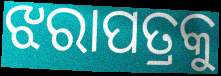
ଝରାପତ୍ରକୁ